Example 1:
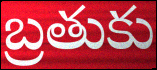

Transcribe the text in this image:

బ్రతుకు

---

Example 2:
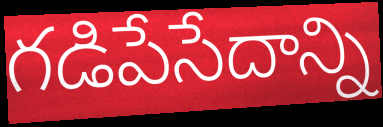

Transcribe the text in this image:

గడిపేసేదాన్ని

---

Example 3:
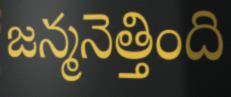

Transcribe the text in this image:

జన్మనెత్తింది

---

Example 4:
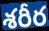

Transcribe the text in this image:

శరీర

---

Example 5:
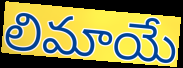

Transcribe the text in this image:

లిమాయే